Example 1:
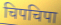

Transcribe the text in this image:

चिपचिपा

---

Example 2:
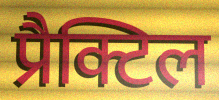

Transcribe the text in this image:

प्रैक्टिल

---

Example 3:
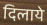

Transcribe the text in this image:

दिलाये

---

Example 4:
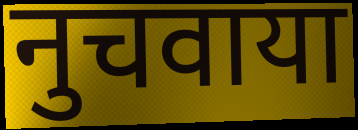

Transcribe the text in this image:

नुचवाया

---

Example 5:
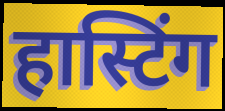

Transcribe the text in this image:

हास्टिंग